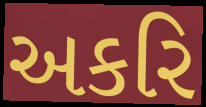
અકરિ